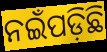
ନଇଁପଡ଼ିଛି